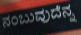
ನಂಬುವುದೆನ್ನ